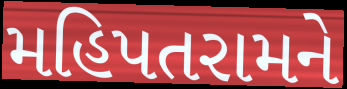
મહિપતરામને